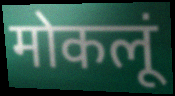
मोकलूं